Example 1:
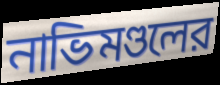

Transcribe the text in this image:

নাভিমণ্ডলের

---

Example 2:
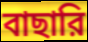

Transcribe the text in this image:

বাছারি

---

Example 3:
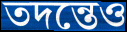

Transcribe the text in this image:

তদন্তেও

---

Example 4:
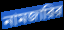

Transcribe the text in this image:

নামজারির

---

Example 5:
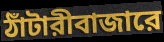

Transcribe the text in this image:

ঠাঁটারীবাজারে